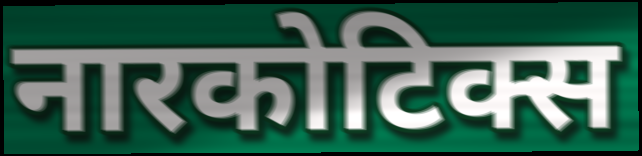
नारकोटिक्स